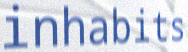
inhabits